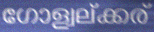
ഗോള്വല്ക്കര്